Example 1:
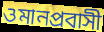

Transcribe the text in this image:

ওমানপ্রবাসী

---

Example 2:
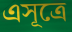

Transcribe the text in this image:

এসূত্রে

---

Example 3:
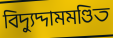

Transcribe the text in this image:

বিদ্যুদ্দামমণ্ডিত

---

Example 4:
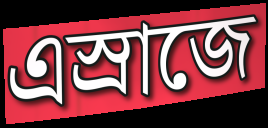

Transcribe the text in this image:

এস্রাজে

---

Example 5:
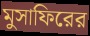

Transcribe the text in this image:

মুসাফিরের